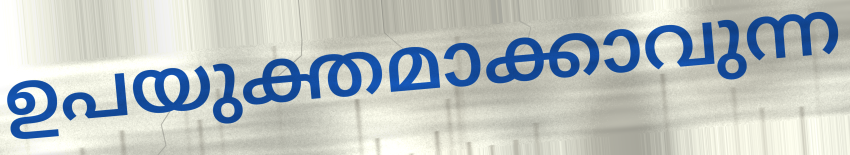
ഉപയുക്തമാക്കാവുന്ന